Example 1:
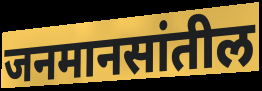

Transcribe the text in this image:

जनमानसांतील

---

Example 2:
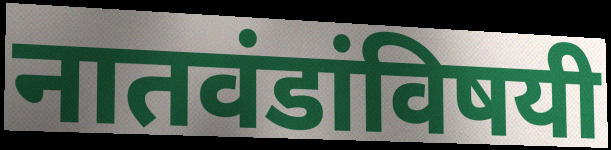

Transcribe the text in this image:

नातवंडांविषयी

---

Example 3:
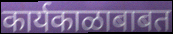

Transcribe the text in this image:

कार्यकाळाबाबत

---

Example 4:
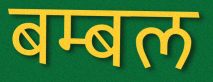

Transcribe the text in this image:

बम्बल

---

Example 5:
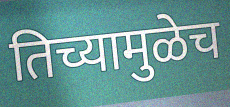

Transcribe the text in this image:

तिच्यामुळेच